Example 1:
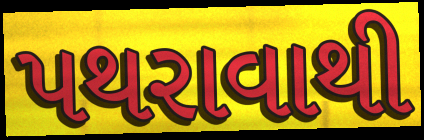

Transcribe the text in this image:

પથરાવાથી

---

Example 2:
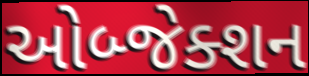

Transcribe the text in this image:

ઓબ્જેક્શન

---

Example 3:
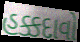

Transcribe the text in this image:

હક્કદાવો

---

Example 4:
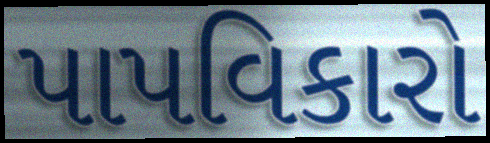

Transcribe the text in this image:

પાપવિકારો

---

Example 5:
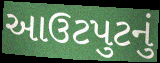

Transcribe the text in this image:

આઉટપુટનું